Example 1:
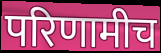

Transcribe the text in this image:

परिणामीच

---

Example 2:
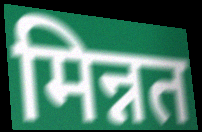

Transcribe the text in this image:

मिन्नत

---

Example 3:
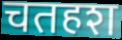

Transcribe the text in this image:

चतहश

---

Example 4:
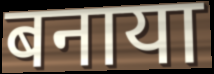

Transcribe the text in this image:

बनाया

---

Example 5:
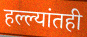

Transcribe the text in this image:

हल्ल्यांतही